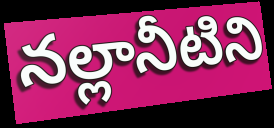
నల్లానీటిని